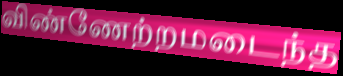
விண்ணேற்றமடைந்த